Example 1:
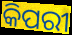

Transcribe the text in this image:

କିପରୀ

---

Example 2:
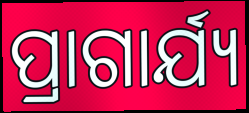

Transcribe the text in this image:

ପ୍ରାଗାର୍ଯ୍ୟ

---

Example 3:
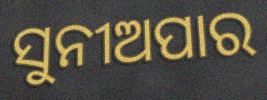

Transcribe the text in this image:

ସୁନୀଅପାର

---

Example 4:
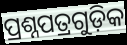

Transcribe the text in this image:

ପ୍ରଶ୍ନପତ୍ରଗୁଡ଼ିକ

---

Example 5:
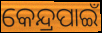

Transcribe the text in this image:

କେନ୍ଦ୍ରପାଇଁ